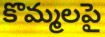
కొమ్మలపై